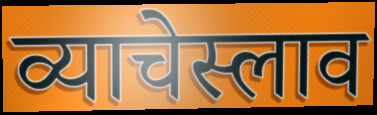
व्याचेस्लाव